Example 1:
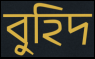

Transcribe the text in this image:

বুহিদ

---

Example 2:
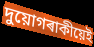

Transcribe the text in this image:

দুয়োগৰাকীয়েই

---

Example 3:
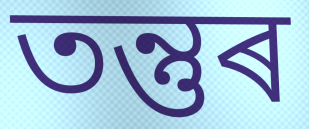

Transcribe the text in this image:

তন্তুৰ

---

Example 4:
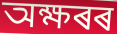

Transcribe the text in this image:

অক্ষৰৰ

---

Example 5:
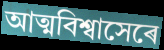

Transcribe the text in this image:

আত্মবিশ্বাসেৰে